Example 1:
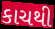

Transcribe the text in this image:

કાચથી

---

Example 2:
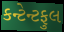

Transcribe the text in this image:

કન્ટેન્ટફુલ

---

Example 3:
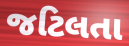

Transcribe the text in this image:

જટિલતા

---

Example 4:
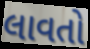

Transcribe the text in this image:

લાવતો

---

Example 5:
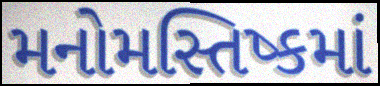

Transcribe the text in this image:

મનોમસ્તિષ્કમાં